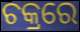
ଚକ୍ରରେ